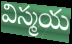
విస్మయ